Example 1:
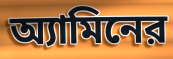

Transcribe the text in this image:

অ্যামিনের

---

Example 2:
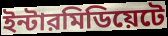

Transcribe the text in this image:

ইন্টারমিডিয়েটে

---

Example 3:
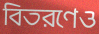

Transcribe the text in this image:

বিতরণেও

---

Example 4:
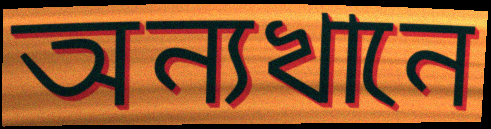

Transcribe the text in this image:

অন্যখানে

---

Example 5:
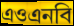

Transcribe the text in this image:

এওএনবি